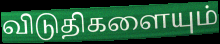
விடுதிகளையும்